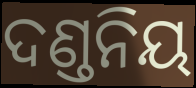
ଦଣ୍ଡନିୟ